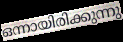
ഒന്നായിരിക്കുന്നു